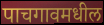
पाचगावमधील